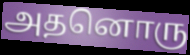
அதனொரு